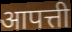
आपत्ती